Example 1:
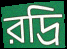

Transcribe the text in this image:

রদ্রি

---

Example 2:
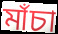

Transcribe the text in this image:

মাঁচা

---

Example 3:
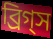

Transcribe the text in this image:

ব্রিগ্‌স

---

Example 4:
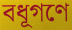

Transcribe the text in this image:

বধূগণে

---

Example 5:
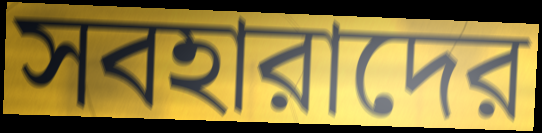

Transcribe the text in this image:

সবহারাদের